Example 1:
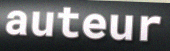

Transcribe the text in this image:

auteur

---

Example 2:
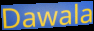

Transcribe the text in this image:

Dawala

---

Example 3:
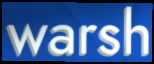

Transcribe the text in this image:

warsh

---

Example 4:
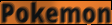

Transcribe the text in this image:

Pokemon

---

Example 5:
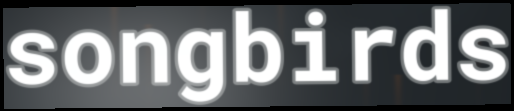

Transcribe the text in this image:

songbirds